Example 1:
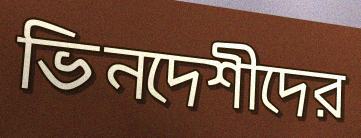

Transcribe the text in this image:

ভিনদেশীদের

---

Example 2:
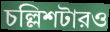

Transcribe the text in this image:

চল্লিশটারও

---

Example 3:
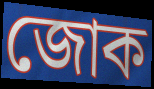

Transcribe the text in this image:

জোক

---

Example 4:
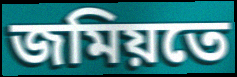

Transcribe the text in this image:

জমিয়তে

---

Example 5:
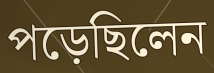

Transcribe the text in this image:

পড়েছিলেন